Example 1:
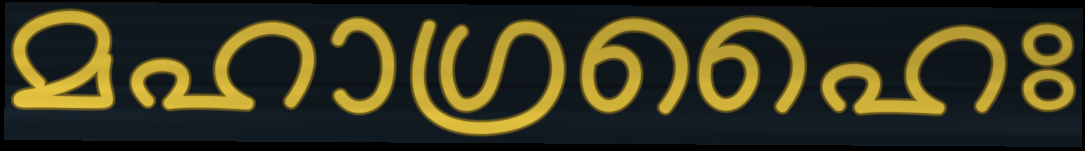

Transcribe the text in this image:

മഹാഗ്രഹൈഃ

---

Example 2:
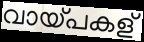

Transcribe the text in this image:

വായ്പകള്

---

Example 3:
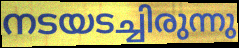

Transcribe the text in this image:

നടയടച്ചിരുന്നു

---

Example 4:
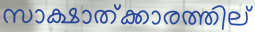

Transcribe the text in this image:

സാക്ഷാത്ക്കാരത്തില്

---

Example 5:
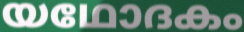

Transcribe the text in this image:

യഥോദകം